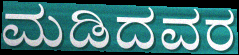
ಮಡಿದವರ